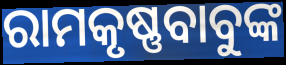
ରାମକୃଷ୍ଣବାବୁଙ୍କ